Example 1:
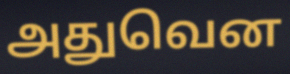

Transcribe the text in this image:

அதுவென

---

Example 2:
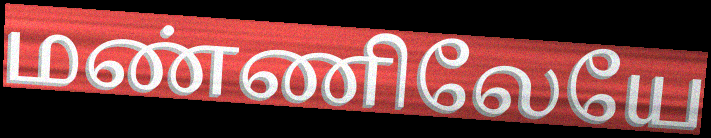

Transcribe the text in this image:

மண்ணிலேயே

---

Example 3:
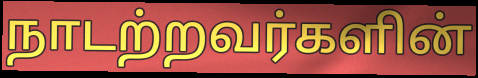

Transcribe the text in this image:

நாடற்றவர்களின்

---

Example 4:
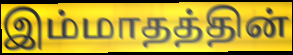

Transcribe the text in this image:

இம்மாதத்தின்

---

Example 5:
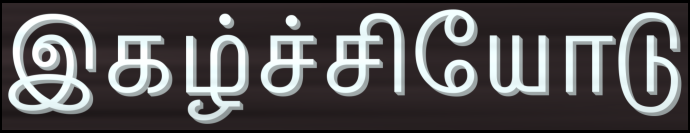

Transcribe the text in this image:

இகழ்ச்சியோடு